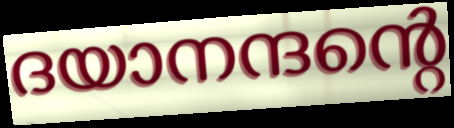
ദയാനന്ദന്റെ